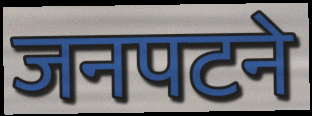
जनपटने